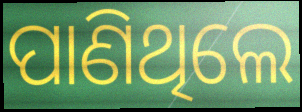
ପାଣିଥିଲେ